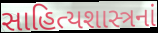
સાહિત્યશાસ્ત્રનાં